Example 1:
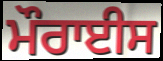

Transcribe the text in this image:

ਮੌਰਾਈਸ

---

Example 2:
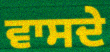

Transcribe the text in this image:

ਵਾਸਦੇ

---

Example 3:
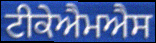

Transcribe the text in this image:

ਟੀਕੇਐਮਐਸ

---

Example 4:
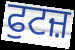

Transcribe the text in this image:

ਫੁਟਜ਼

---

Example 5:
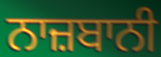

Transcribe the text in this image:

ਨਾਜ਼ਬਾਨੀ